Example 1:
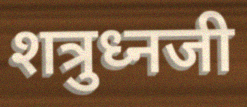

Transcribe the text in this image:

शत्रुध्नजी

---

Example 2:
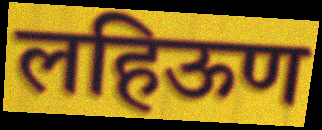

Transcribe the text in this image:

लहिऊण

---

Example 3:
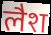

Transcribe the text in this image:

लैश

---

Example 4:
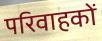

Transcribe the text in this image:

परिवाहकों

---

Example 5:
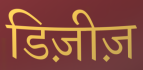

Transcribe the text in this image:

डिज़ीज़